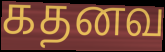
கதனவ